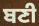
ਬਣੀ